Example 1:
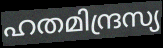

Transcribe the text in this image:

ഹതമിന്ദ്രസ്യ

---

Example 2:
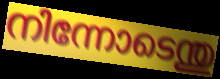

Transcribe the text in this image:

നിന്നോടെന്തു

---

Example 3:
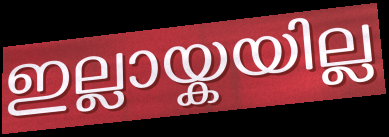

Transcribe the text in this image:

ഇല്ലായ്കയില്ല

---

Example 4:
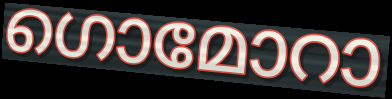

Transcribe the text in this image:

ഗൊമോറാ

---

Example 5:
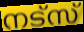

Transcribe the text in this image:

നട്സ്